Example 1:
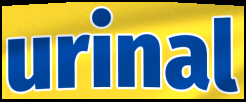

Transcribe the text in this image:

urinal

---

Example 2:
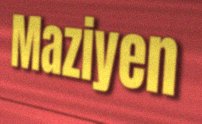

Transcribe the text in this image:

Maziyen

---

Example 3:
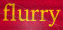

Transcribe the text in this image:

flurry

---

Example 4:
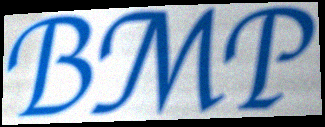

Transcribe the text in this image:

BMP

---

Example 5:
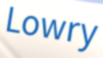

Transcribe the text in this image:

Lowry